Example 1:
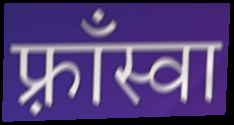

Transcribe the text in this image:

फ़्राँस्वा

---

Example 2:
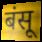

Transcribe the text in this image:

बंसू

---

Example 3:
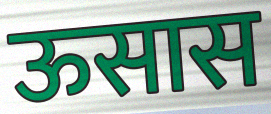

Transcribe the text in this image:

ऊसास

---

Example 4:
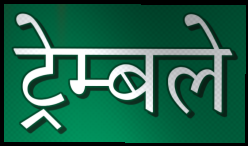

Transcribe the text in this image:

ट्रेम्बले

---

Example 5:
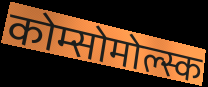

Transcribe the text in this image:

कोम्सोमोल्स्क